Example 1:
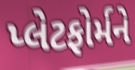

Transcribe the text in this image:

પ્લેટફોર્મને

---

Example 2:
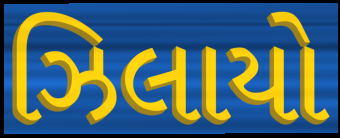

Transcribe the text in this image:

ઝિલાયો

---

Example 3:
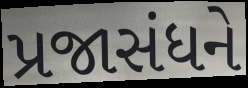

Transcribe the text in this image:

પ્રજાસંધને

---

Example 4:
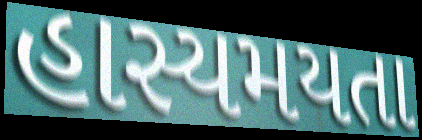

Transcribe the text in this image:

હાસ્યમયતા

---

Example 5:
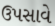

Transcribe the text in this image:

ઉપસાવે